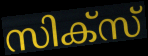
സിക്സ്